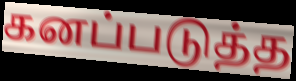
கனப்படுத்த